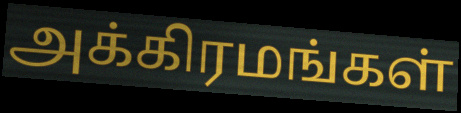
அக்கிரமங்கள்